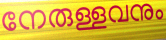
നേരുള്ളവനും